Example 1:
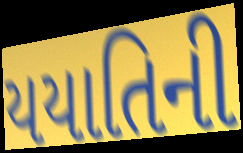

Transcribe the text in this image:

યયાતિની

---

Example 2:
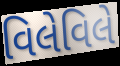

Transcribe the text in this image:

વિલેવિલે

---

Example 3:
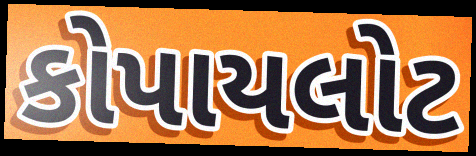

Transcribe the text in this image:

કોપાયલોટ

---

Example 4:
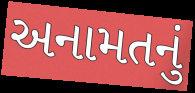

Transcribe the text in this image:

અનામતનું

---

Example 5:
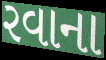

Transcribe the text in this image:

રવાના